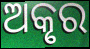
ଅକୃର